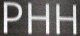
PHH